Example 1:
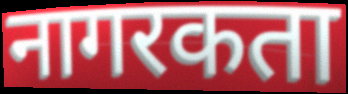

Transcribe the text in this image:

नागरकता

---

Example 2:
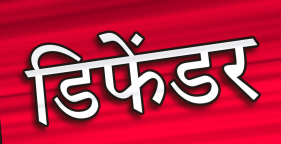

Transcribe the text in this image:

डिफेंडर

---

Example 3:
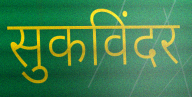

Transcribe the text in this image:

सुकविंदर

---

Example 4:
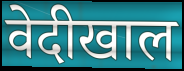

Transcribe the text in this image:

वेदीखाल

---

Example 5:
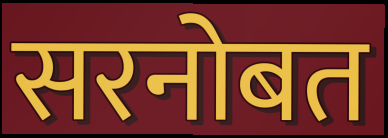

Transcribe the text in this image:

सरनोबत